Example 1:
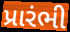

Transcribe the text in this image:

પ્રારંભી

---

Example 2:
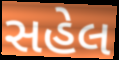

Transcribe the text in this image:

સહેલ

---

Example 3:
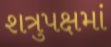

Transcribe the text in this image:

શત્રુપક્ષમાં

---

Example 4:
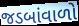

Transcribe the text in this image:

જડબાંવાળો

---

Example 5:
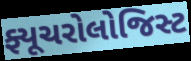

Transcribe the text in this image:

ફ્યૂચરોલોજિસ્ટ